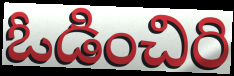
ఓడించిరి